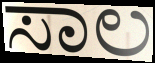
ಸಾಲ